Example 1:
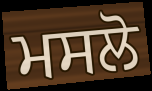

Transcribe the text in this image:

ਮਸਲੋ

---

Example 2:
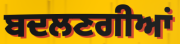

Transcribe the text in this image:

ਬਦਲਣਗੀਆਂ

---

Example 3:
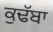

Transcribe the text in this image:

ਕੁਢੱਬਾ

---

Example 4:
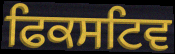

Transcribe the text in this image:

ਫਿਕਸਟਿਵ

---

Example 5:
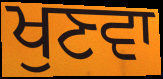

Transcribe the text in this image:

ਖੁਣਵਾ